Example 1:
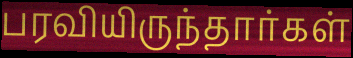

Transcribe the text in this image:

பரவியிருந்தார்கள்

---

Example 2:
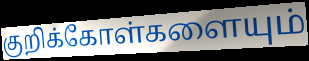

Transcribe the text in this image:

குறிக்கோள்களையும்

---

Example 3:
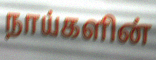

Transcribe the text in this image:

நாய்களின்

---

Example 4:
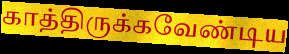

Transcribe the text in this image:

காத்திருக்கவேண்டிய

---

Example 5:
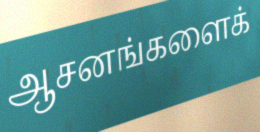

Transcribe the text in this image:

ஆசனங்களைக்